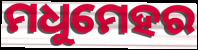
ମଧୁମେହର